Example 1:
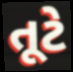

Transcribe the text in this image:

તૂટે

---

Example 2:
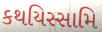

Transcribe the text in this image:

કથયિસ્સામિ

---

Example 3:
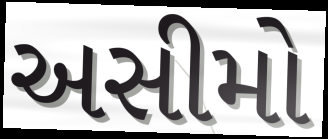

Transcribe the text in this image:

અસીમો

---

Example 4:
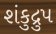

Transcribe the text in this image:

શંકુદ્રુપ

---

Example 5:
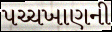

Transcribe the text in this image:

પચ્ચખાણની